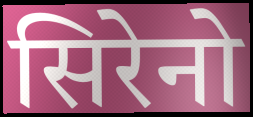
सिरेनो